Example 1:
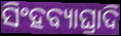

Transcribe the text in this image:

ସିଂହବ୍ୟାଘ୍ରାଦି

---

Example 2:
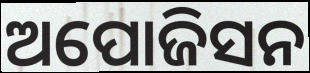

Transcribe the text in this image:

ଅପୋଜିସନ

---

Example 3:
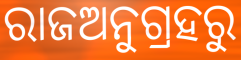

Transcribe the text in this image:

ରାଜଅନୁଗ୍ରହରୁ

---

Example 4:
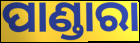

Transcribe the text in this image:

ପାଣ୍ଡାରା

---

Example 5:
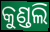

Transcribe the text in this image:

କୁଣ୍ଡଲି